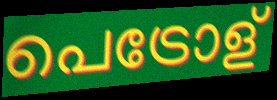
പെട്രോള്